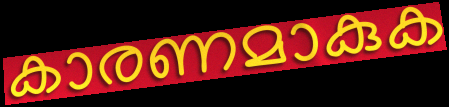
കാരണമാകുക